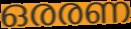
ഒരരണ